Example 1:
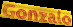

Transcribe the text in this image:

Gonzalo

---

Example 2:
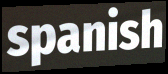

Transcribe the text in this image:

spanish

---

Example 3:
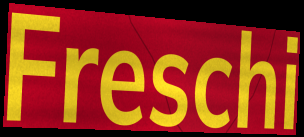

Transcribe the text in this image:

Freschi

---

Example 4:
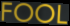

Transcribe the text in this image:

FOOL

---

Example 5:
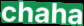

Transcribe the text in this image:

chaha